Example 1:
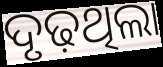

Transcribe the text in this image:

ଦୃଢ଼ଥିଲା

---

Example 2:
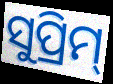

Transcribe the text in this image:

ସୁପ୍ରିମ୍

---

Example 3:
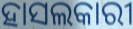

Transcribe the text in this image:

ହାସଲକାରୀ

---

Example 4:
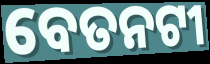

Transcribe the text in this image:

ବେତନଟୀ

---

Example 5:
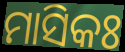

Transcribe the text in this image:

ମାସିକଃ